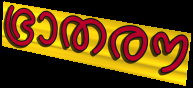
ഭ്രാതരൗ